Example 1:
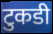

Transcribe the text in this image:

टुकडी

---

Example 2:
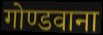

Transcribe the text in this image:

गोण्डवाना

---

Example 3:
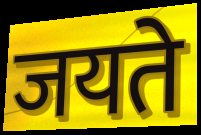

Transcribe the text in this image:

जयते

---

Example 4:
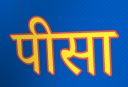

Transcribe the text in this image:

पीसा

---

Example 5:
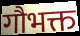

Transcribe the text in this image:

गौभक्त